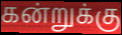
கன்றுக்கு